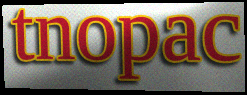
tnopac